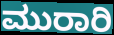
ಮುರಾರಿ